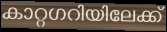
കാറ്റഗറിയിലേക്ക്